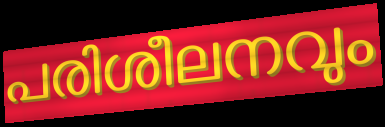
പരിശീലനവും